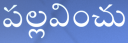
పల్లవించు